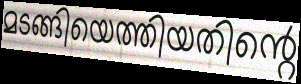
മടങ്ങിയെത്തിയതിന്റെ